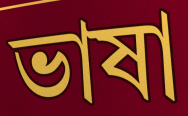
ভাষা